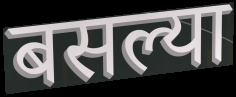
बसल्या